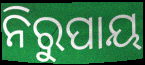
ନିରୁପାୟ